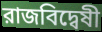
রাজবিদ্বেষী